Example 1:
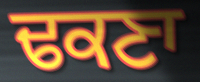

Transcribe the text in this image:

ਢਕਣਾ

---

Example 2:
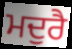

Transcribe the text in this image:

ਮਦੁਰੈ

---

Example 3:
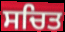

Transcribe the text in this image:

ਸਚਿਤ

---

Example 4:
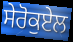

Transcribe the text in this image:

ਸੇਰੋਕੁਏਲ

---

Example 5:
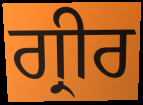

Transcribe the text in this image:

ਗ੍ਰੀਰ